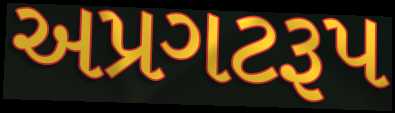
અપ્રગટરૂપ